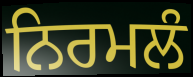
ਨਿਰਮਲੰ